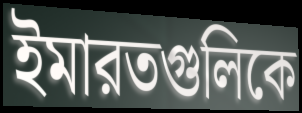
ইমারতগুলিকে